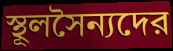
স্থূলসৈন্যদের